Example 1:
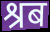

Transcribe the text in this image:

श्रब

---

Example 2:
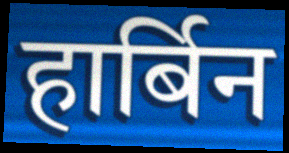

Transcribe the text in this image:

हार्बिन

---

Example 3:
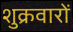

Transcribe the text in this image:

शुक्रवारों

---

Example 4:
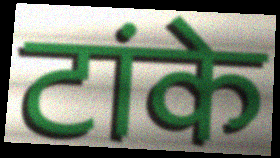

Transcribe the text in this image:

टांके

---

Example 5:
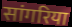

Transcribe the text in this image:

सांगरिया